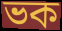
ভক